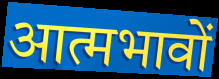
आत्मभावों